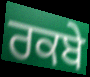
ਰਕਬੇ